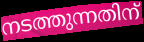
നടത്തുന്നതിന്